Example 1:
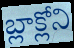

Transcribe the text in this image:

బ్లాక్లోని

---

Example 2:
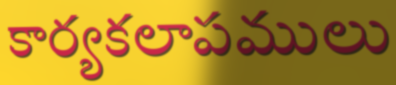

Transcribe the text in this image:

కార్యకలాపములు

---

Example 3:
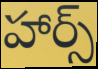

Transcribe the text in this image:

హార్స్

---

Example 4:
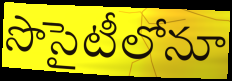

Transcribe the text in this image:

సొసైటీలోనూ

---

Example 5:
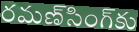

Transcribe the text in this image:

రమణ్‌సింగ్‌కు